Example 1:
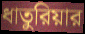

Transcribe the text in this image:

ধাতুরিয়ার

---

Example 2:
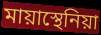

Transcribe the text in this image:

মায়াস্থেনিয়া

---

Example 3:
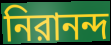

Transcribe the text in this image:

নিরানন্দ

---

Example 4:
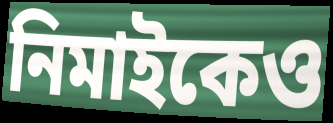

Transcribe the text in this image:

নিমাইকেও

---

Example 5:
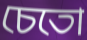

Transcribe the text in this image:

চেতো